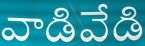
వాడివేడి